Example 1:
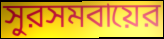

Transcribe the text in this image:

সুরসমবায়ের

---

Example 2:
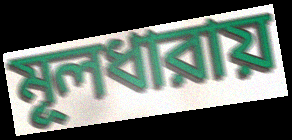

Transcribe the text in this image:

মূলধারায়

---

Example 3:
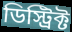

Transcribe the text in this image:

ডিস্ট্রিক্ট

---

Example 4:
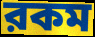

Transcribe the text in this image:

রকম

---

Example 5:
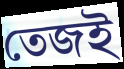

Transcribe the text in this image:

তেজই